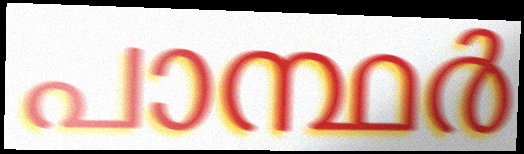
പാന്ഥർ